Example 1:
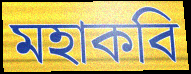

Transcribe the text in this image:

মহাকবি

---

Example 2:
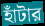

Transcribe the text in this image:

হাঁটার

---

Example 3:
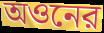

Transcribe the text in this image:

অওনের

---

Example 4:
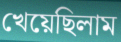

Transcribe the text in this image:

খেয়েছিলাম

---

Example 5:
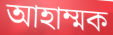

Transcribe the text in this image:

আহাম্মক